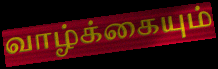
வாழ்க்கையும்